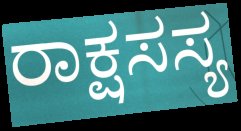
ರಾಕ್ಷಸಸ್ಯ